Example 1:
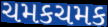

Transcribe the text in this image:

ચમકચમક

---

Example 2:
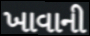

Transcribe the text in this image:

ખાવાની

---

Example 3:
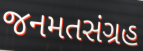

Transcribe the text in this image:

જનમતસંગ્રહ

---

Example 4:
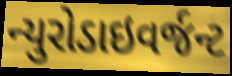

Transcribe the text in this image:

ન્યુરોડાઇવર્જન્ટ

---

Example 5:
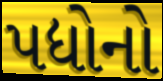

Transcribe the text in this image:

પદ્યોનો